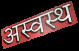
अस्वस्थ